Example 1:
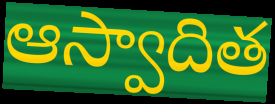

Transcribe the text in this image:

ఆస్వాదిత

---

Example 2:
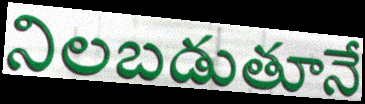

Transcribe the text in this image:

నిలబడుతూనే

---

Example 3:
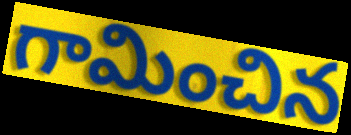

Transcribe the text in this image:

గామించిన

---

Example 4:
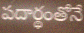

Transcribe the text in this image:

పదార్థంతోనే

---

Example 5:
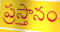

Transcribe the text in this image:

ప్రస్తానం